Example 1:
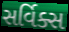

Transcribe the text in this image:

સર્વિક્સ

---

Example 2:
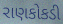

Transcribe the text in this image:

રાણકોકડી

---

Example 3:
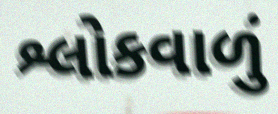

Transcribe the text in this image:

શ્લોકવાળું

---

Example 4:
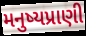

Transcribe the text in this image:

મનુષ્યપ્રાણી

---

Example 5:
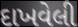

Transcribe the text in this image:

દાખવેલી